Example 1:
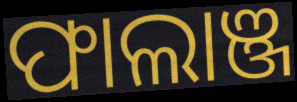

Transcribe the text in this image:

ଫାଲାଞ୍ଜ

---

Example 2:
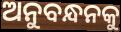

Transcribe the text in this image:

ଅନୁବନ୍ଧନକୁ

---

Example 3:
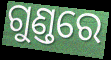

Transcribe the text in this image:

ଗୁଣ୍ଡରେ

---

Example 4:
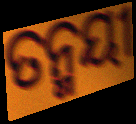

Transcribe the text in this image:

ତନ୍ମୟୀ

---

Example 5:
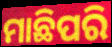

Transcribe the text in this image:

ମାଛିପରି